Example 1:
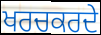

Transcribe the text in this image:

ਖਰਚਕਰਦੇ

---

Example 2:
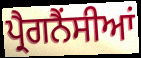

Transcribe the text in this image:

ਪ੍ਰੈਗਨੈਂਸੀਆਂ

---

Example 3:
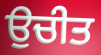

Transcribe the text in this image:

ਉਚੀਤ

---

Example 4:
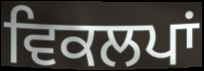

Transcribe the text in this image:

ਵਿਕਲਪਾਂ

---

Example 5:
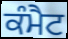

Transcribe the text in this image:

ਕੰਮੈਟ